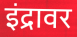
इंद्रावर